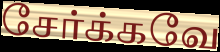
சேர்க்கவே